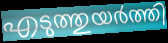
എടുത്തുയർത്തി